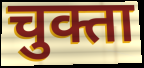
चुक्ता